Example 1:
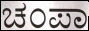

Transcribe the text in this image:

ಚಂಪಾ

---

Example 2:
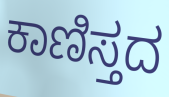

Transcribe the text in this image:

ಕಾಣಿಸ್ತದ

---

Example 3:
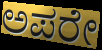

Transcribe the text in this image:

ಅಪರೇ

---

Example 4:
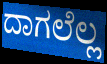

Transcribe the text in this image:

ದಾಗಲೆಲ್ಲ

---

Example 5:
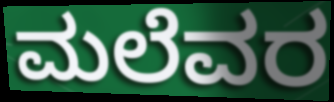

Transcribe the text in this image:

ಮಲೆವರ